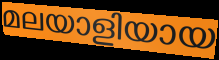
മലയാളിയായ